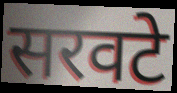
सरवटे